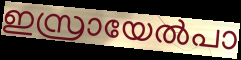
ഇസ്രായേൽപാ